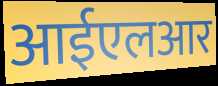
आईएलआर